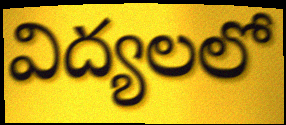
విద్యలలో